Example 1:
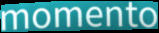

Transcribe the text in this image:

momento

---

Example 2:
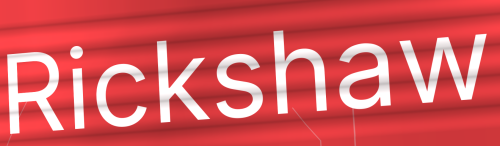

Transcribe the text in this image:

Rickshaw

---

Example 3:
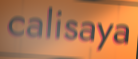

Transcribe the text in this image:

calisaya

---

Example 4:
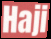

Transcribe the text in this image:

Haji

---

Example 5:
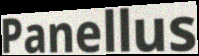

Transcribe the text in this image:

Panellus